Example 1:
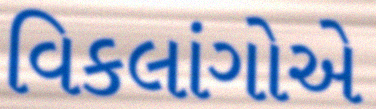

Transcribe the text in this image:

વિકલાંગોએ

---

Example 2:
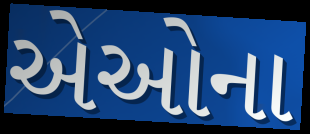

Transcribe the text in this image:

એઓના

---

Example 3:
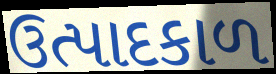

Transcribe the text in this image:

ઉત્પાદકાળ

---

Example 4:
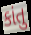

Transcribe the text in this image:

કાંતુ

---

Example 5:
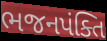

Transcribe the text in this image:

ભજનપંક્તિ